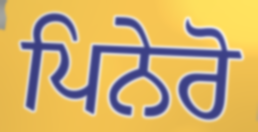
ਪਿਨੇਰੋ